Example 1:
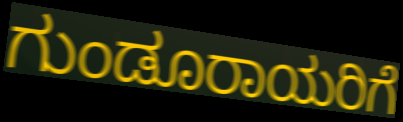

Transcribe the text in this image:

ಗುಂಡೂರಾಯರಿಗೆ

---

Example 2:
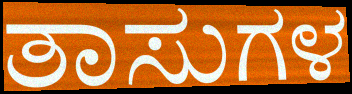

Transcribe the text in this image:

ತಾಸುಗಳ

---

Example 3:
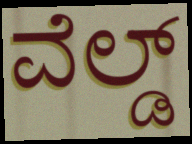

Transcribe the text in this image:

ವೆಲ್ಡ್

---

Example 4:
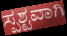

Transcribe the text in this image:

ಸ್ಪಶ್ಟವಾಗಿ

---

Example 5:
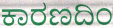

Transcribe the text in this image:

ಕಾರಣದಿಂ